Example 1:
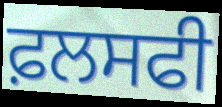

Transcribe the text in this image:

ਫ਼ਲਸਫੀ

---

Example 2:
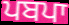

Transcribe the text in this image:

ਪਬਪਾ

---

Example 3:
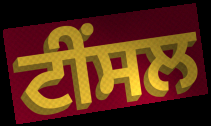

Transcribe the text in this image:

ਟੀਂਸਲ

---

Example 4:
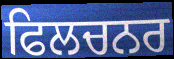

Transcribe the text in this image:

ਫਿਲਚਨਰ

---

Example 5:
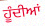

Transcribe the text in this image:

ਹੂੰਦੀਆਂ